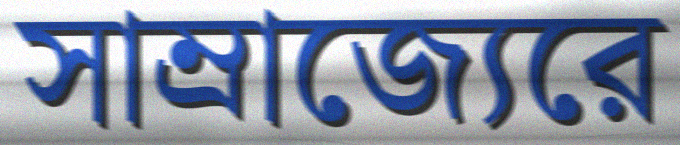
সাম্রাজ্যেরে